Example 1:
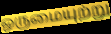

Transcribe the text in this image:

ஒருமையுற்று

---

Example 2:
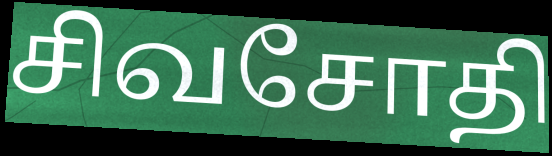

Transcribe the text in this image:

சிவசோதி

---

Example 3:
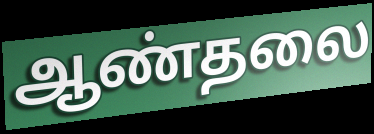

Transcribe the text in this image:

ஆண்தலை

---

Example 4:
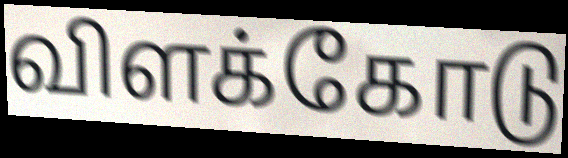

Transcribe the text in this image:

விளக்கோடு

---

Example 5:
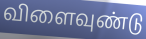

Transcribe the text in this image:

விளைவுண்டு